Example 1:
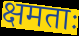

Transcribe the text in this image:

क्षमताः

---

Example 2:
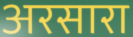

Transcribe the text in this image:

अरसारा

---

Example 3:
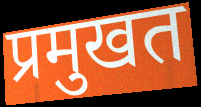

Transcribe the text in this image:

प्रमुखत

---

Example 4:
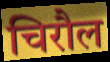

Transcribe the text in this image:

चिरौल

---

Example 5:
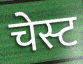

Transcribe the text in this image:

चेस्‍ट